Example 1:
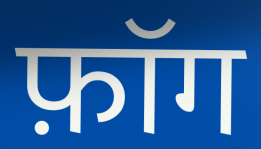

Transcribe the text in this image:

फ़ॉग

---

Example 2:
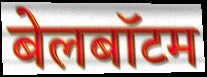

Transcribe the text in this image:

बेलबॉटम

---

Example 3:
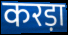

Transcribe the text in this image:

करड़ा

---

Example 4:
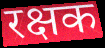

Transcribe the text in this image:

रक्षक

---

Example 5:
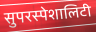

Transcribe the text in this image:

सुपरस्पेशालिटी